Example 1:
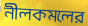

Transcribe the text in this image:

নীলকমলের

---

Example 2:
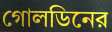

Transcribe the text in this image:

গোলডিনের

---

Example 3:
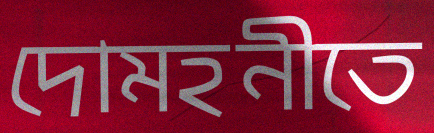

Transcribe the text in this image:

দোমহনীতে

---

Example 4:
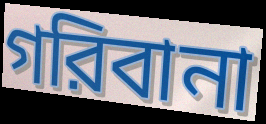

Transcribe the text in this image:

গরিবানা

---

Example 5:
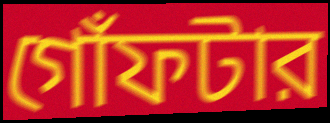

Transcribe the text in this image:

গোঁফটার